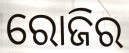
ରୋଜିର